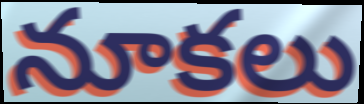
నూకలు